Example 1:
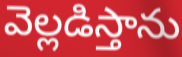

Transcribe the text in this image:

వెల్లడిస్తాను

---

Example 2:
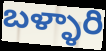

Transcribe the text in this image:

బళ్ళారి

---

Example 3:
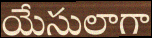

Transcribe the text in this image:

యేసులాగా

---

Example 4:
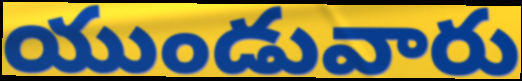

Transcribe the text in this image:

యుండువారు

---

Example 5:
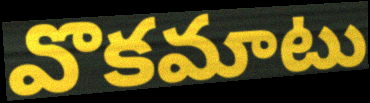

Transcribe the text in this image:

వొకమాటు